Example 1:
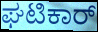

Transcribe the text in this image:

ಘಟಿಕಾರ್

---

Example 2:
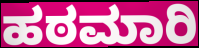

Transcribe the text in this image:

ಹಠಮಾರಿ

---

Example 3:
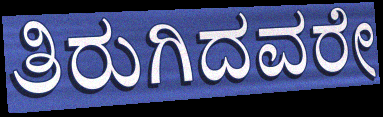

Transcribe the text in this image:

ತಿರುಗಿದವರೇ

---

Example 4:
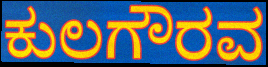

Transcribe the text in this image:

ಕುಲಗೌರವ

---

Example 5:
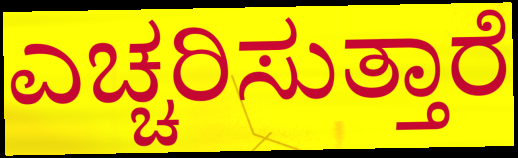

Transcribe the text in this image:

ಎಚ್ಚರಿಸುತ್ತಾರೆ